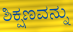
ಶಿಕ್ಷಣವನ್ನು